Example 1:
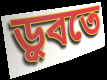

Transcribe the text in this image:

ড়ুবতে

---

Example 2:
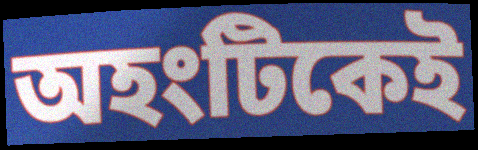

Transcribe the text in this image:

অহংটিকেই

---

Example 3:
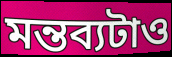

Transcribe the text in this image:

মন্তব্যটাও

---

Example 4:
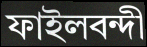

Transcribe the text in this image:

ফাইলবন্দী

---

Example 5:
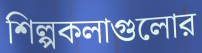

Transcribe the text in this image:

শিল্পকলাগুলোর